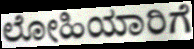
ಲೋಹಿಯಾರಿಗೆ